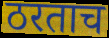
ठरताच